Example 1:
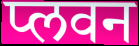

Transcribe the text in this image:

प्लवन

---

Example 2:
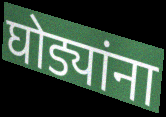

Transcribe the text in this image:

घोड्यांना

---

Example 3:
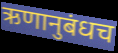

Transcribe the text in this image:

ऋणानुबंधच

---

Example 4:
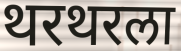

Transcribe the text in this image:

थरथरला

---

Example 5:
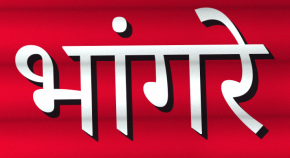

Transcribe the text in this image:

भांगरे